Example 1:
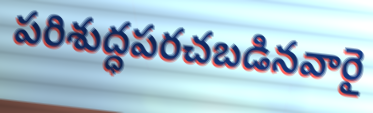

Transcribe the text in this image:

పరిశుద్ధపరచబడినవారై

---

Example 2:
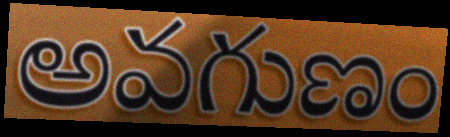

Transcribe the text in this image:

అవగుణం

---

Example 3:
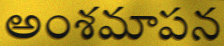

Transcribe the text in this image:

అంశమాపన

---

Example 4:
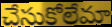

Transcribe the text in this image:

చేసుకోలేమా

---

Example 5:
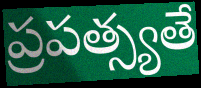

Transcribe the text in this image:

ప్రపత్స్యతే